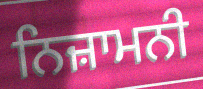
ਨਿਜ਼ਾਮਨੀ